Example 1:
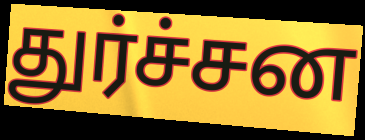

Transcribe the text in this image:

துர்ச்சன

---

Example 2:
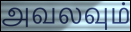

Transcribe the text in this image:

அவலவும்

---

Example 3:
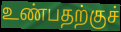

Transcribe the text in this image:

உண்பதற்குச்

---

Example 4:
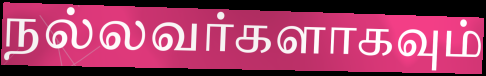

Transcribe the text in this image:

நல்லவர்களாகவும்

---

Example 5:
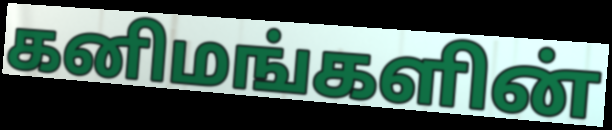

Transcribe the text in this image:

கனிமங்களின்